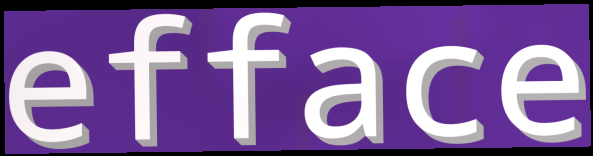
efface